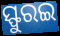
ସ୍ଫୁରଇ